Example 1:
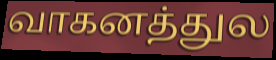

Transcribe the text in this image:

வாகனத்துல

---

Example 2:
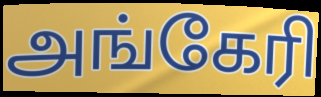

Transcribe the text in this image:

அங்கேரி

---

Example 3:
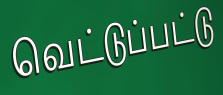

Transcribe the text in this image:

வெட்டுப்பட்டு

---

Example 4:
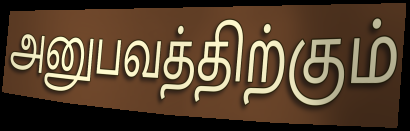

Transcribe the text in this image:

அனுபவத்திற்கும்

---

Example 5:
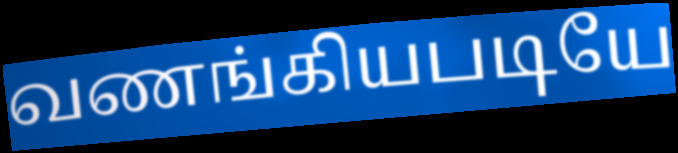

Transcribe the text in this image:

வணங்கியபடியே